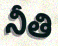
నీతి